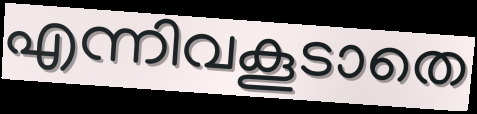
എന്നിവകൂടാതെ